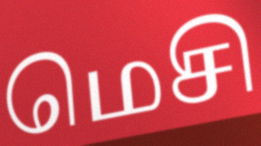
மெசி